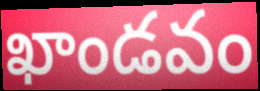
ఖాండవం